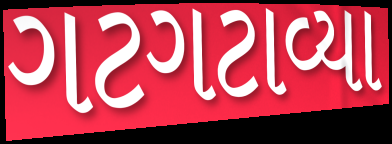
ગટગટાવ્યા